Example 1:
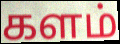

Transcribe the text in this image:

களம்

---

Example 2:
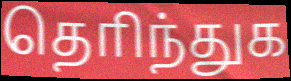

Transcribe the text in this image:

தெரிந்துக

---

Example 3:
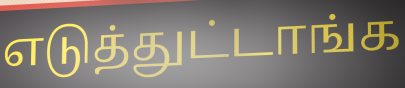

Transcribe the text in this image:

எடுத்துட்டாங்க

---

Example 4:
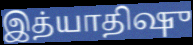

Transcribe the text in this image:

இத்யாதிஷு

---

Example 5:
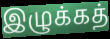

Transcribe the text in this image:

இழுக்கத்